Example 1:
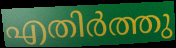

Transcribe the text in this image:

എതിർത്തു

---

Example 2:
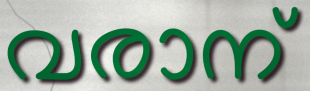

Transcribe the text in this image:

വരാന്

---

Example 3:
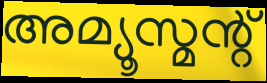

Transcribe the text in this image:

അമ്യൂസ്മന്റ്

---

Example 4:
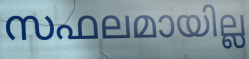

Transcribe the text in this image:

സഫലമായില്ല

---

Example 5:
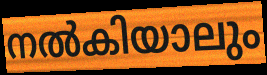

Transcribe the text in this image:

നൽകിയാലും